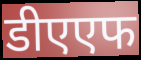
डीएएफ